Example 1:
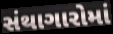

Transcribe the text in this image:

સંથાગારોમાં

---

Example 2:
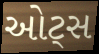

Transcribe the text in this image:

ઓટ્સ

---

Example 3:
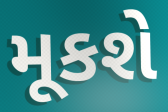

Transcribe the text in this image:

મૂકશે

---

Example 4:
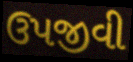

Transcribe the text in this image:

ઉપજીવી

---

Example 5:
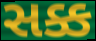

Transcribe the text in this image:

સક્ક